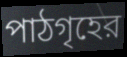
পাঠগৃহের